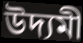
উদ্যমী